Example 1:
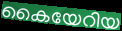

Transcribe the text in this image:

കൈയേറിയ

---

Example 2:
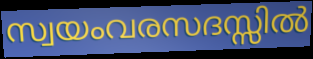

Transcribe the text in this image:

സ്വയംവരസദസ്സിൽ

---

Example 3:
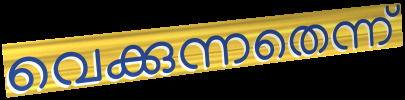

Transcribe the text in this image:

വെക്കുന്നതെന്ന്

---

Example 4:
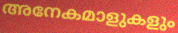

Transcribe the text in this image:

അനേകമാളുകളും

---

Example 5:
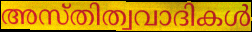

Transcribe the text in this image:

അസ്തിത്വവാദികൾ